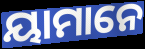
ୟାମାନେ